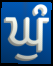
ਘੁੰ